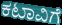
ಕಟಾವಿಗೆ